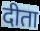
दीता